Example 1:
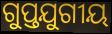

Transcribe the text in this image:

ଗୁପ୍ତଯୁଗୀୟ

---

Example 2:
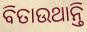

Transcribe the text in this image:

ବିତାଉଥାନ୍ତି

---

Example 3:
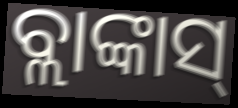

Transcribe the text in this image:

ବ୍ଲାଙ୍କାସ୍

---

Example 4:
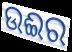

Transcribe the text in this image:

ଉଈର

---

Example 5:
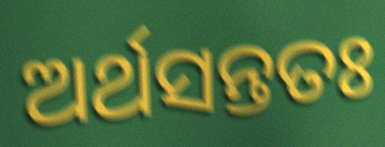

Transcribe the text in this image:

ଅର୍ଥସନ୍ତତଃ